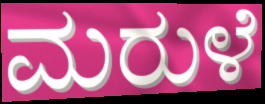
ಮರುಳೆ